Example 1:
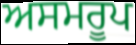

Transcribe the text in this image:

ਅਸਮਰੂਪ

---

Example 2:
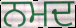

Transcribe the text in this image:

ਨਮਦ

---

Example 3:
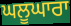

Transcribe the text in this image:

ਘਲੂਘਾਰਾ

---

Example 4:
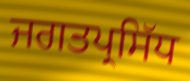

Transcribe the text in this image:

ਜਗਤਪ੍ਰਸਿੱਧ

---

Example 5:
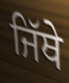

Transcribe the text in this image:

ਜਿੱਥੇ